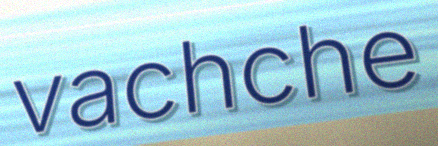
vachche